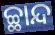
ଚ୍ଛାନ୍ଦ